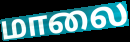
மாலை